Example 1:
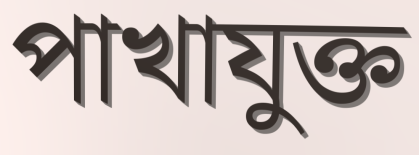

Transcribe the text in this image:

পাখাযুক্ত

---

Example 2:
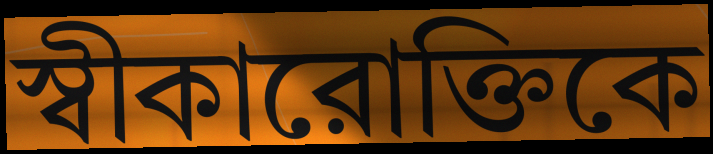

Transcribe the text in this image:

স্বীকারোক্তিকে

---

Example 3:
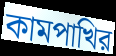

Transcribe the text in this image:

কামপাখির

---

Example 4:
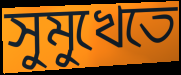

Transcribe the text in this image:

সুমুখেতে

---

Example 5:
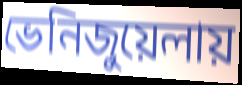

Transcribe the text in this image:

ভেনিজুয়েলায়